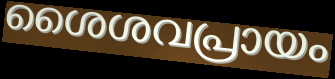
ശൈശവപ്രായം